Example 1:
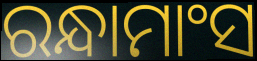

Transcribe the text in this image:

ରନ୍ଧାମାଂସ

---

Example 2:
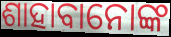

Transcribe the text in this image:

ଶାହାବାନୋଙ୍କ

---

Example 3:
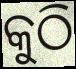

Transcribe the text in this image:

କୁଠି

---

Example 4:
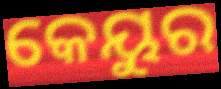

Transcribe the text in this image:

କେୟୁର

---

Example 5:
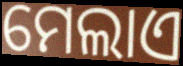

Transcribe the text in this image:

ମେଲାଏ